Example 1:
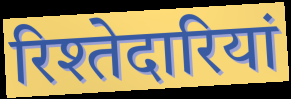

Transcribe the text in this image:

रिश्तेदारियां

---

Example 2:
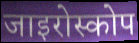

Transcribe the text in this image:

जाइरोस्कोप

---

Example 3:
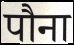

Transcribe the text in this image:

पौना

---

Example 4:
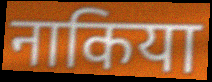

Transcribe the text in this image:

नाकिया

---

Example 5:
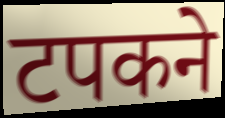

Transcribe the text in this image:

टपकने